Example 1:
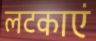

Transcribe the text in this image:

लटकाएं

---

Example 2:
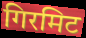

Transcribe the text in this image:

गिरमिट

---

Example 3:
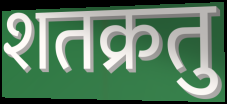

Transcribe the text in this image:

शतक्रतु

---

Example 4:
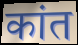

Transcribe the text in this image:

कांत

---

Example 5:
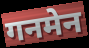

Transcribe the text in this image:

गनमेन